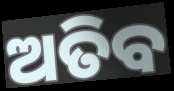
ଅତିବ